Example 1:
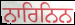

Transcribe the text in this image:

ਨਾਰਿਨਿਨ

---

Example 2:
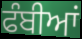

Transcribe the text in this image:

ਫੰਬੀਆਂ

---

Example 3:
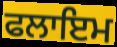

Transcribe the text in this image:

ਫਲਾਇਮ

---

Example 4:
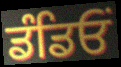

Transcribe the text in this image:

ਡੰਡਿਓਂ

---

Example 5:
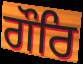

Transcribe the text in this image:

ਗੌਰਿ